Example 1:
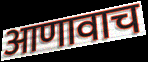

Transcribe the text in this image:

आणावाच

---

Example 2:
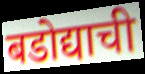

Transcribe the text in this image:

बडोद्याची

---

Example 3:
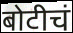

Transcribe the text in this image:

बोटीचं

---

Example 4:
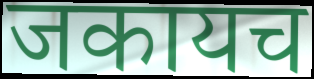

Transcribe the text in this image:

जकायच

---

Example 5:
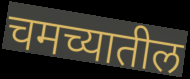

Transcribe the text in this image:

चमच्यातील